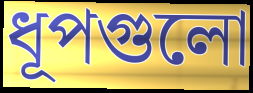
ধূপগুলো